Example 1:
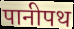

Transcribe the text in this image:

पानीपथ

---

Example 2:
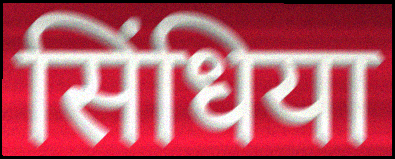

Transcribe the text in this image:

सिंधिया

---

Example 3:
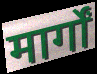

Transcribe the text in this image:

मार्गों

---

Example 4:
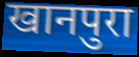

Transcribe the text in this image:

खानपुरा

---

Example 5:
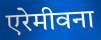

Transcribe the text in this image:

एरेमीवना